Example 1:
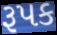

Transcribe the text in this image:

રૂપક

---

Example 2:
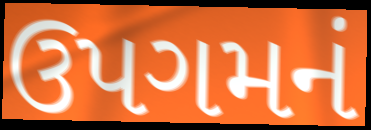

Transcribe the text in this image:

ઉપગમનં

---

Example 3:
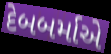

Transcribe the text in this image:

દેબબર્માએ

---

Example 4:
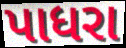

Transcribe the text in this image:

પાધરા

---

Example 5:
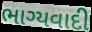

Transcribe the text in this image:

ભાગ્યવાદી